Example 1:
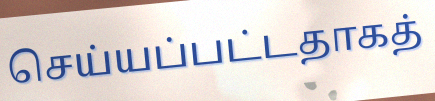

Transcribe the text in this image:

செய்யப்பட்டதாகத்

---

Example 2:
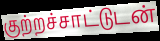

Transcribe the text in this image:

குற்றச்சாட்டுடன்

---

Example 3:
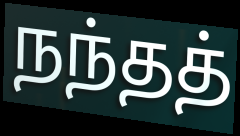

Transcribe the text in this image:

நந்தத்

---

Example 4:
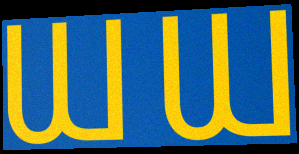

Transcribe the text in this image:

யய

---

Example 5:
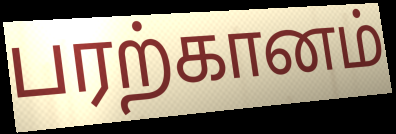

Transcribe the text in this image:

பரற்கானம்